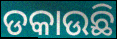
ଡକାଉଛି